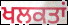
ਖਲਕਤਾਂ